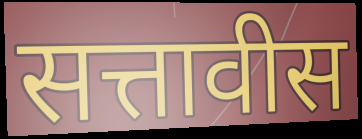
सत्तावीस